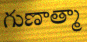
గుణాత్మా